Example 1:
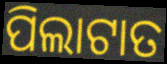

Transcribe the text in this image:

ପିଲାଟାତ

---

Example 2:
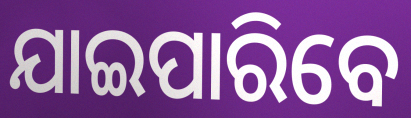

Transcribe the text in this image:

ଯାଇପାରିବେ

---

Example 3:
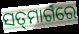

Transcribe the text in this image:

ସତ୍‌ମାର୍ଗରେ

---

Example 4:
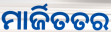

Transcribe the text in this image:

ମାର୍ଜିତତର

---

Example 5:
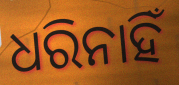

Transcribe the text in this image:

ଧରିନାହିଁ